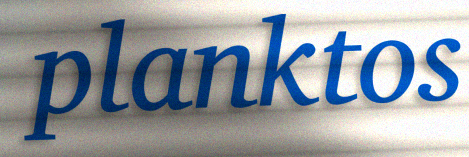
planktos